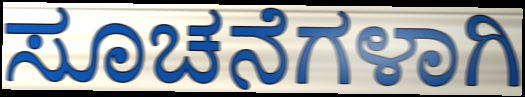
ಸೂಚನೆಗಳಾಗಿ